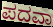
ಪದವಾ